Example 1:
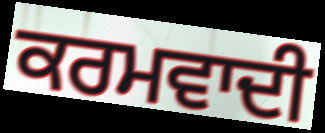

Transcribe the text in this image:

ਕਰਮਵਾਦੀ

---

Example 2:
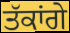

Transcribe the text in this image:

ਤੱਕਾਂਗੇ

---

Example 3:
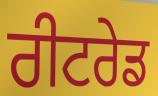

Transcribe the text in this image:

ਰੀਟਰੇਡ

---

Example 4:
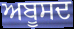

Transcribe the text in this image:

ਅਬੂਸਦ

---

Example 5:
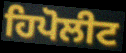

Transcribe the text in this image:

ਹਿਪੋਲੀਟ